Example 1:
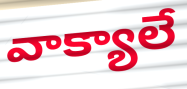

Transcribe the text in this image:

వాక్యాలే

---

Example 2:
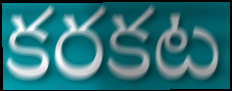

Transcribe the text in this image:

కరకట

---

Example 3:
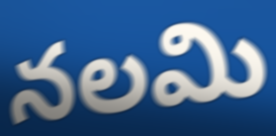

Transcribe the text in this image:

నలమి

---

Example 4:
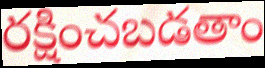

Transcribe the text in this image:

రక్షించబడతాం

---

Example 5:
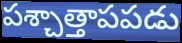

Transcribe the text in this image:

పశ్చాత్తాపపడు